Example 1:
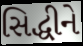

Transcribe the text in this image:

સિદ્ધીને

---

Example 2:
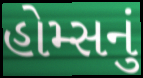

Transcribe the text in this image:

હોમ્સનું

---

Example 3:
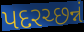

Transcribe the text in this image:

પદરચ્છન્નં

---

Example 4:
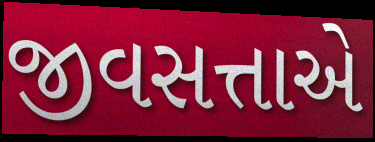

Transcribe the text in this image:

જીવસત્તાએ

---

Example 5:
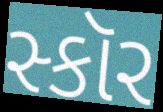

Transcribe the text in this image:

સ્કૉર